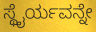
ಸ್ಥೈರ್ಯವನ್ನೇ